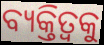
ବ୍ୟକ୍ତିତ୍ଵକୁ